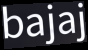
bajaj